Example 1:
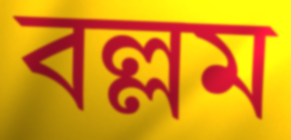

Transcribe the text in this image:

বল্লম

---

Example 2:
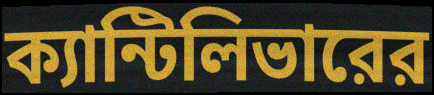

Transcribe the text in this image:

ক্যান্টিলিভারের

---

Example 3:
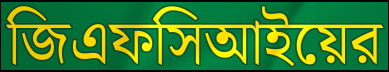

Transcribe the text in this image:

জিএফসিআইয়ের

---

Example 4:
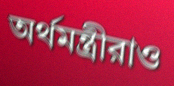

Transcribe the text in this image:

অর্থমন্ত্রীরাও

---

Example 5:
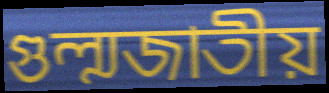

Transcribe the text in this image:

গুল্মজাতীয়